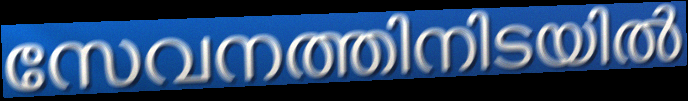
സേവനത്തിനിടയിൽ